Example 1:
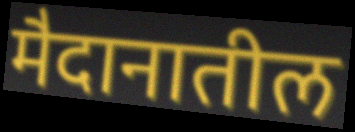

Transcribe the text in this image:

मैदानातील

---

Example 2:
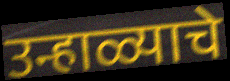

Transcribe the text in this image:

उन्हाळ्याचे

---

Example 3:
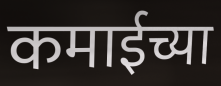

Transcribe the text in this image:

कमाईच्या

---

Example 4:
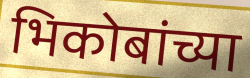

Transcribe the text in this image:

भिकोबांच्या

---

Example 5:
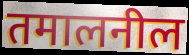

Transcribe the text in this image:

तमालनील